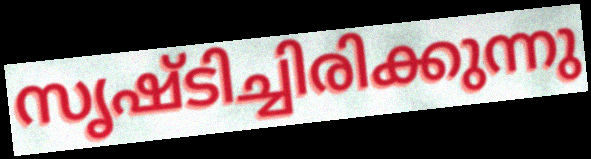
സൃഷ്ടിച്ചിരിക്കുന്നു